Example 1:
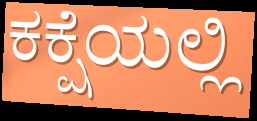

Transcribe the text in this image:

ಕಕ್ಷೆಯಲ್ಲಿ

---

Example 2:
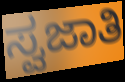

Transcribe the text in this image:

ಸ್ವಜಾತಿ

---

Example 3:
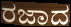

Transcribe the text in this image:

ರಜಾದ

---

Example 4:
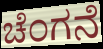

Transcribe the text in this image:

ಚೆಂಗನೆ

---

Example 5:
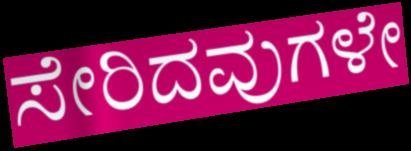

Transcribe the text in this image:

ಸೇರಿದವುಗಳೇ